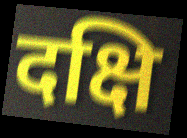
दक्षि